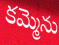
కమ్మెను